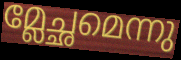
മ്ലേച്ഛമെന്നു